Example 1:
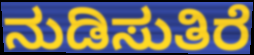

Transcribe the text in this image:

ನುಡಿಸುತಿರೆ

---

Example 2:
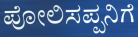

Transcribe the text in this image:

ಪೋಲಿಸಪ್ಪನಿಗೆ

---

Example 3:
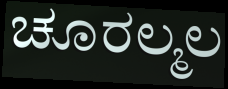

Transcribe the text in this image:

ಚೂರಲ್ಮಲ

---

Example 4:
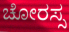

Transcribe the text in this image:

ಚೋರಸ್ಸ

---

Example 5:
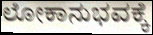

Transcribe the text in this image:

ಲೋಕಾನುಭವಕ್ಕೆ